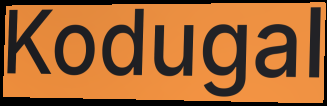
Kodugal